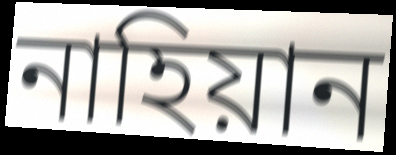
নাহিয়ান